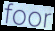
foor